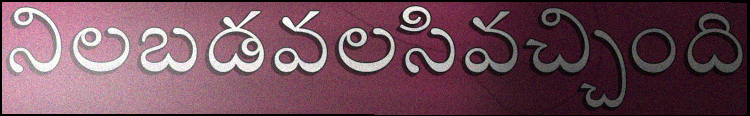
నిలబడవలసివచ్చింది